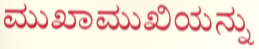
ಮುಖಾಮುಖಿಯನ್ನು